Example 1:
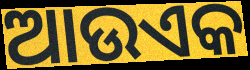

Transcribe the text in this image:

ଆଉଏକ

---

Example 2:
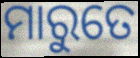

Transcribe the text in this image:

ମାରୁତେ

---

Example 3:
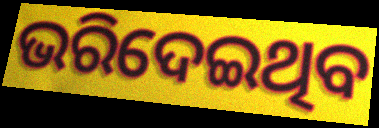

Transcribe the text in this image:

ଭରିଦେଇଥିବ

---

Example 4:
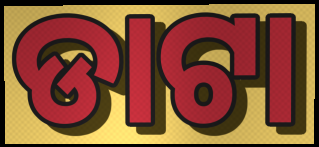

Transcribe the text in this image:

ଡାଟା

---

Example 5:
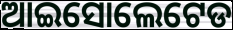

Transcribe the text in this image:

ଆଇସୋଲେଟେଡ